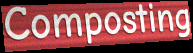
Composting